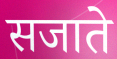
सजाते